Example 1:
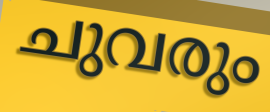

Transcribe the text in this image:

ചുവരും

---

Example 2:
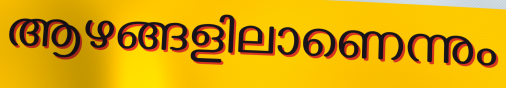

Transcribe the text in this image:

ആഴങ്ങളിലാണെന്നും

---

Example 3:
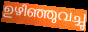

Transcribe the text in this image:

ഉഴിഞ്ഞുവച്ചു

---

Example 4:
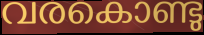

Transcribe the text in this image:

വരകൊണ്ടു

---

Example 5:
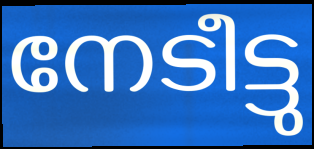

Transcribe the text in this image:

നേടീട്ടു